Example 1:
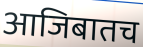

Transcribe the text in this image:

आजिबातच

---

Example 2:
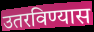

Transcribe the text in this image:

उतरविण्यास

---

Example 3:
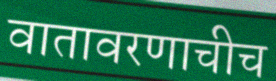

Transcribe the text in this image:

वातावरणाचीच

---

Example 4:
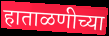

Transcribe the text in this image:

हाताळणीच्या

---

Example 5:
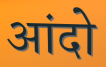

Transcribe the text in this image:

आंदो